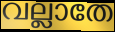
വല്ലാതേ